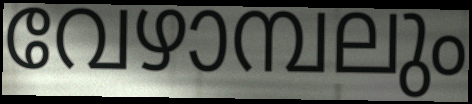
വേഴാമ്പലും